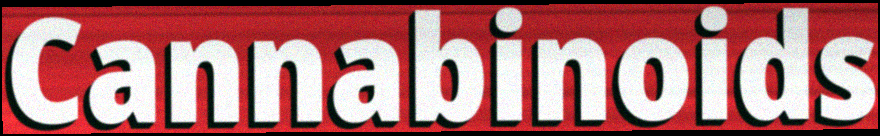
Cannabinoids